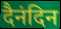
दैनंदिन